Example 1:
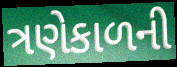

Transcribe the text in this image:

ત્રણેકાળની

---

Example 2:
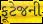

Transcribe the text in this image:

ફૂટેજની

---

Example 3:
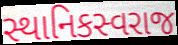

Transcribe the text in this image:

સ્થાનિકસ્વરાજ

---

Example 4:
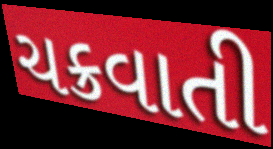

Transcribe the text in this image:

ચક્રવાતી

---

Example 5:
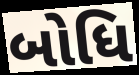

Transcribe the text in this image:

બોધિ